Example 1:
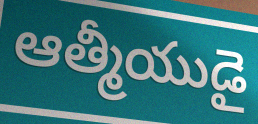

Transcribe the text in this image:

ఆత్మీయుడై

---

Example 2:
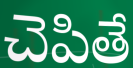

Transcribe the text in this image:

చెపితే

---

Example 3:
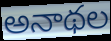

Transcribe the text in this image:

అనాథల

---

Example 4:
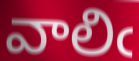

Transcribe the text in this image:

వాలిఁ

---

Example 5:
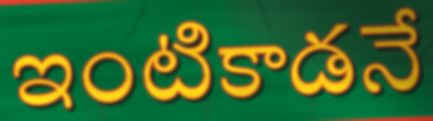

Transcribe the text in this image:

ఇంటికాడనే